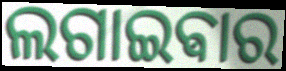
ଲଗାଇଵାର